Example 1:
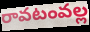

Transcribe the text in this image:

రావటంవల్ల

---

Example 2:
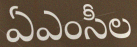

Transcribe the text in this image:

ఏఎంసీల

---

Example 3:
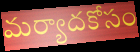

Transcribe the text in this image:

మర్యాదకోసం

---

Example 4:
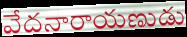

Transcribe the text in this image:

వేదనారాయణుడు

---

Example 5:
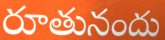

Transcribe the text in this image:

రూతునందు